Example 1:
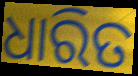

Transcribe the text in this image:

ଧାରିତ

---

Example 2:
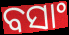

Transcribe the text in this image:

ବସାଂ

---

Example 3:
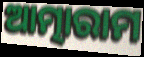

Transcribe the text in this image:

ଆତ୍ମାରାମ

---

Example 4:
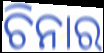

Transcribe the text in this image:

ଚିନାର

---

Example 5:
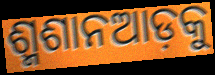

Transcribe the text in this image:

ଶ୍ମଶାନଆଡ଼କୁ